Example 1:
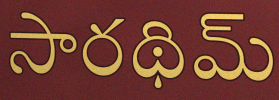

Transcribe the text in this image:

సారథిమ్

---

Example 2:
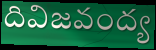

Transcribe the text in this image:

దివిజవంద్య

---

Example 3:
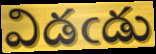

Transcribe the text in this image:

విడఁడు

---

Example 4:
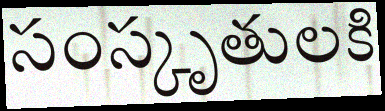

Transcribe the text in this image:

సంస్కృతులకి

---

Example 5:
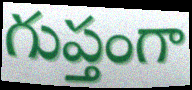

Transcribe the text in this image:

గుప్తంగా